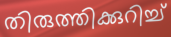
തിരുത്തിക്കുറിച്ച്